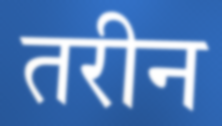
तरीन